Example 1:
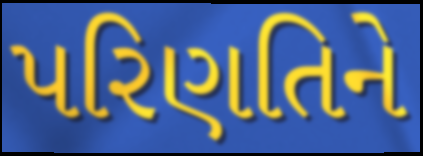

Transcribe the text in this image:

પરિણતિને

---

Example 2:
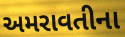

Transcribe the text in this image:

અમરાવતીના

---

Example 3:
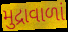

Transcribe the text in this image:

મુદ્રાવાળાં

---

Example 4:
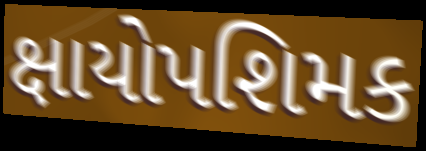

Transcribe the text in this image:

ક્ષાયોપશિમક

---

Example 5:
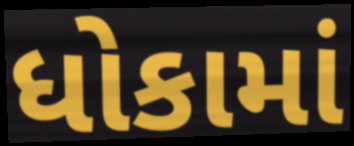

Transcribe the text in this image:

ધોકામાં